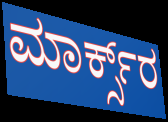
ಮಾರ್ಕ್ಸ್‌ರ